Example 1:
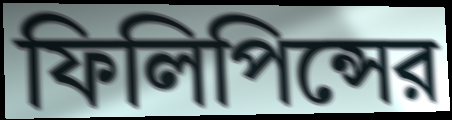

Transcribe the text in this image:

ফিলিপিন্সের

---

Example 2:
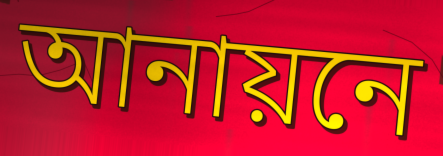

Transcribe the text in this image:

আনায়নে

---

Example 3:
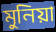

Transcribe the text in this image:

মুনিয়া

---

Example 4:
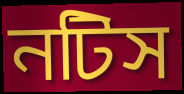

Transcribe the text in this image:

নটিস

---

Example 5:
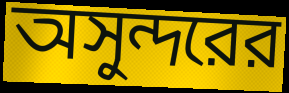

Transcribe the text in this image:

অসুন্দরের